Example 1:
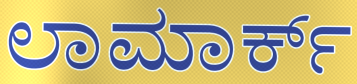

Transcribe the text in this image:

ಲಾಮಾರ್ಕ್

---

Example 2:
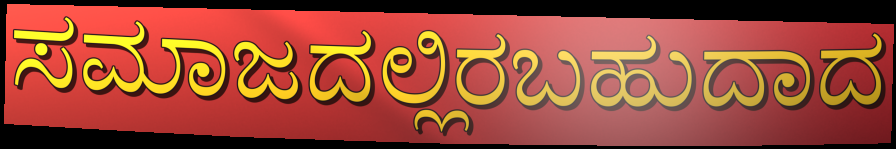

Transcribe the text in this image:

ಸಮಾಜದಲ್ಲಿರಬಹುದಾದ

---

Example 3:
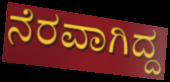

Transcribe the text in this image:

ನೆರವಾಗಿದ್ದ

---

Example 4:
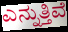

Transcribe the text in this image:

ಎನ್ನುತ್ತಿವೆ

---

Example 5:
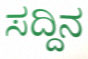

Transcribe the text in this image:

ಸದ್ದಿನ